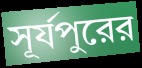
সূর্যপুরের